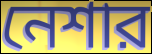
নেশার